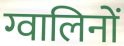
ग्वालिनों